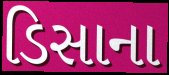
ડિસાના